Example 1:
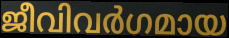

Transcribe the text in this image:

ജീവിവർഗമായ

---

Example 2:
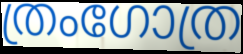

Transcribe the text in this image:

ത്രംഗോത്ര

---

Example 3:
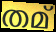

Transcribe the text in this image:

തമ്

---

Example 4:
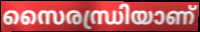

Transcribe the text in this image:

സൈരന്ധ്രിയാണ്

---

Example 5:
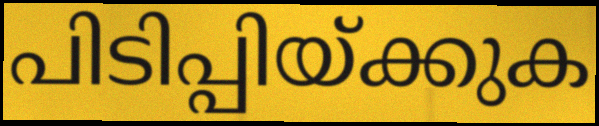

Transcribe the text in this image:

പിടിപ്പിയ്ക്കുക